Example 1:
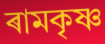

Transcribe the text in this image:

ৰামকৃষ্ণ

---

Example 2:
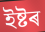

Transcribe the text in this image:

ইষ্টৰ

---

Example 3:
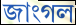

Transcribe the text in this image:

জাংগল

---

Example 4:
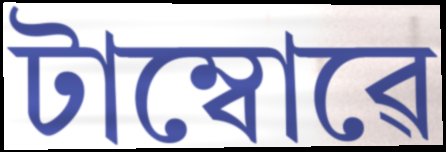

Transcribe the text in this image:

টাম্বোৱে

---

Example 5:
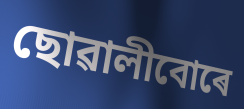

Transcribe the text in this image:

ছোৱালীবোৰে